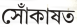
সোঁকাষত